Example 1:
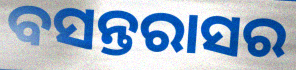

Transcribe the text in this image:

ବସନ୍ତରାସର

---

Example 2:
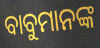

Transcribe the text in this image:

ବାବୁମାନଙ୍କ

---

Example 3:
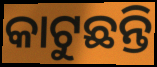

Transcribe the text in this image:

କାଟୁଛନ୍ତି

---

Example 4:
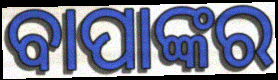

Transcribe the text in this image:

ବାପାଙ୍କର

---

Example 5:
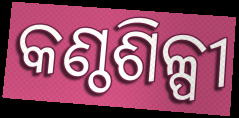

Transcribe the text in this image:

କଣ୍ଠଶିଳ୍ପୀ